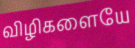
விழிகளையே